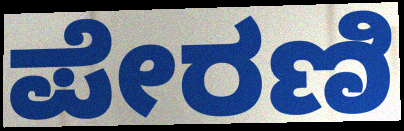
ಪೇರಣಿ